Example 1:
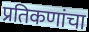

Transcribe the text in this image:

प्रतिकणांचा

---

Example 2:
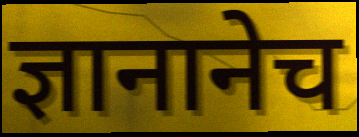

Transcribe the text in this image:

ज्ञानानेच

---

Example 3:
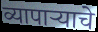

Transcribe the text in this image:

व्यापाऱ्याचे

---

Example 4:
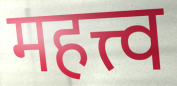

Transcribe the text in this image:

महत्त्व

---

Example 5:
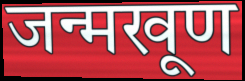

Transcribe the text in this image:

जन्मखूण